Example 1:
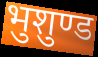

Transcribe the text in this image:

भुशुण्ड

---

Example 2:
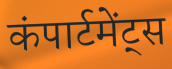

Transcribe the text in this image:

कंपार्टमेंट्स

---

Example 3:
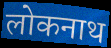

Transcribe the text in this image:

लोकनाथ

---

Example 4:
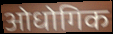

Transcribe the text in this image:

ओधोगिक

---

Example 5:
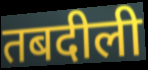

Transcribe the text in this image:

तबदीली